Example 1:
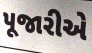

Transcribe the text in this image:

પૂજારીએ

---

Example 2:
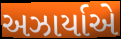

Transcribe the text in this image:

અઝાર્યાએ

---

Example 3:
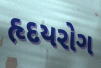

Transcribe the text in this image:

હૃદયરોગ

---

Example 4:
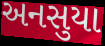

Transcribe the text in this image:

અનસુયા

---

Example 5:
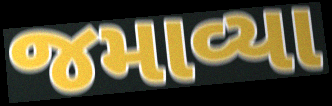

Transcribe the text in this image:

જમાવ્યા